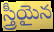
స్త్రీయైన